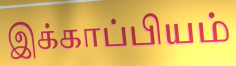
இக்காப்பியம்